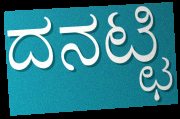
ದನಟ್ಟಿ